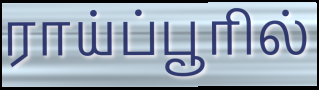
ராய்ப்பூரில்